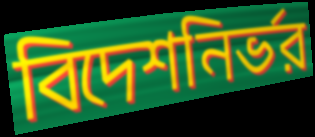
বিদেশনির্ভর